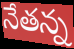
నేతన్న